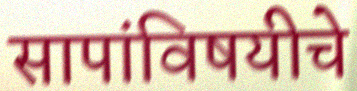
सापांविषयीचे